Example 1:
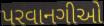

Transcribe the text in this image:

પરવાનગીઓ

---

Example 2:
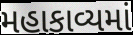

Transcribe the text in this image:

મહાકાવ્યમાં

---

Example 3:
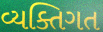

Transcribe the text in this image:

વ્યક્તિગત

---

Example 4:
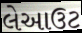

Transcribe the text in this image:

લેઆઉટ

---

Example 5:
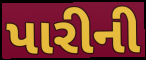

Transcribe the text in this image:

પારીની